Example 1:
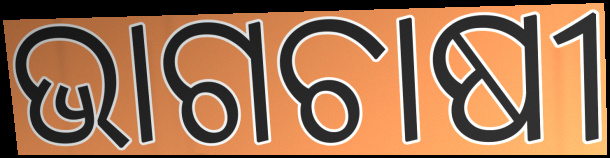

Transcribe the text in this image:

ଭାଗଚାଷୀ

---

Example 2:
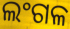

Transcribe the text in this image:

ଲଂଗଳ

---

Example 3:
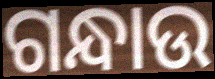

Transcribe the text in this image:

ଗନ୍ଧାଉ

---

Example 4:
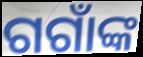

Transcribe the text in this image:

ଗଗାଁଙ୍କ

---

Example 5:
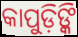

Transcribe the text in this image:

କାପୁଡ଼ିଙ୍କି